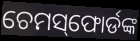
ଚେମସ୍‌ଫୋର୍ଡଙ୍କ